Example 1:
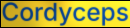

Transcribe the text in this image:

Cordyceps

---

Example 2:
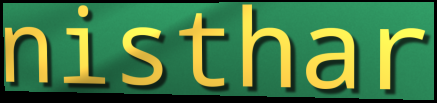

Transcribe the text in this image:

nisthar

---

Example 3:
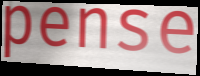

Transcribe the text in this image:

pense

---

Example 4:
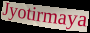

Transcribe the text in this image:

Jyotirmaya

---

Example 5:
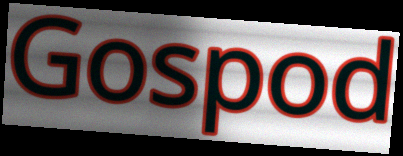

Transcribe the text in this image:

Gospod